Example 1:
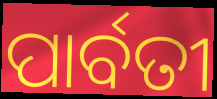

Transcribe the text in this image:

ପାର୍ବତୀ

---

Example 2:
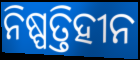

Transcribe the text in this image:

ନିଷ୍ପତ୍ତିହୀନ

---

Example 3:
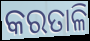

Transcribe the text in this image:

କରତାଳି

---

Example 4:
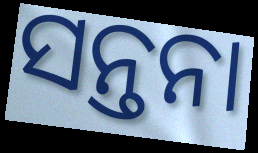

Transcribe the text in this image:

ସନ୍ତନା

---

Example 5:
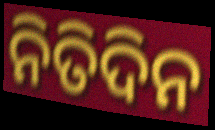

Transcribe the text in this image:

ନିତିଦିନ